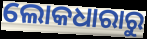
ଲୋକଧାରାରୁ